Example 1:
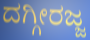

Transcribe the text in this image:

ದಗ್ಗೀರಜ್ಜ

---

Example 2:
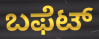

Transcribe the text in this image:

ಬಫೆಟ್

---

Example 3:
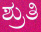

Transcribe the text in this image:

ಶ್ರುತಿ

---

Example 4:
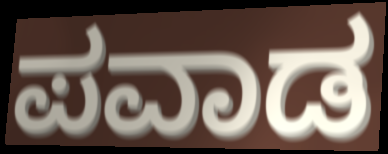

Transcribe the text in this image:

ಪವಾಡ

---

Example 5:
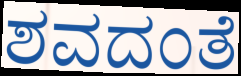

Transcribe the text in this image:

ಶವದಂತೆ